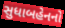
સુધાબહેનનો